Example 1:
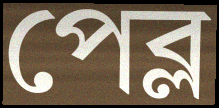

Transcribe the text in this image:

পেব্ল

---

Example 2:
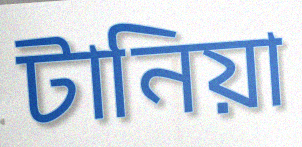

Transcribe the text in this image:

টানিয়া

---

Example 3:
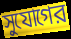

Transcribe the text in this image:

সুযোগের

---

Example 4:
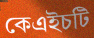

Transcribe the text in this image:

কেএইচটি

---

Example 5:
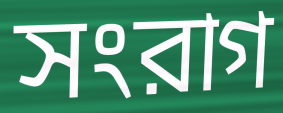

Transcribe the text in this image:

সংরাগ